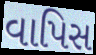
વાપિસ